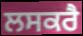
ਲਸਕਰੈ